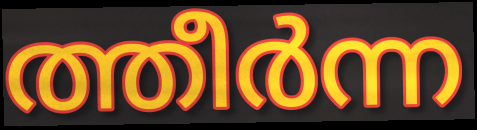
ത്തീർന്ന